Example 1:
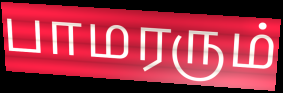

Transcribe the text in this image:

பாமரரும்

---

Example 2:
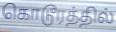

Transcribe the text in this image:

கொடூரத்தில்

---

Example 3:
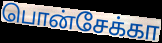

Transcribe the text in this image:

பொன்சேக்கா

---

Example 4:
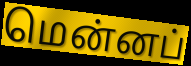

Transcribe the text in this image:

மென்னப்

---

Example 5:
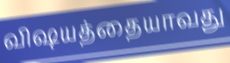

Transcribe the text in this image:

விஷயத்தையாவது